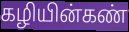
கழியின்கண்